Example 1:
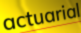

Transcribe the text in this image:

actuarial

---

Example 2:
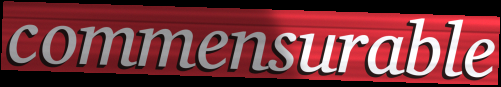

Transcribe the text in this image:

commensurable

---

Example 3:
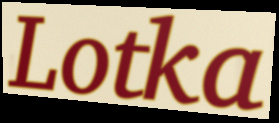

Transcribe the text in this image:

Lotka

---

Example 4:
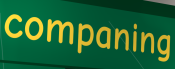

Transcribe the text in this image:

companing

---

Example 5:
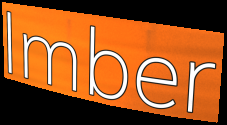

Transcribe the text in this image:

Imber